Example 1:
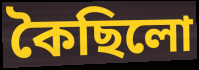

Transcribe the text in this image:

কৈছিলো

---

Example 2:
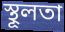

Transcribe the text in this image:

স্থূলতা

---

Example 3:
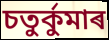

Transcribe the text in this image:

চতুৰ্কুমাৰ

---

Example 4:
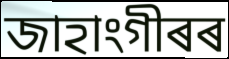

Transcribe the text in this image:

জাহাংগীৰৰ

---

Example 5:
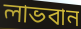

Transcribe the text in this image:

লাভবান